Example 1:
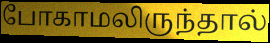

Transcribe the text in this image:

போகாமலிருந்தால்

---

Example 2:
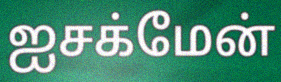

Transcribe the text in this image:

ஐசக்மேன்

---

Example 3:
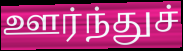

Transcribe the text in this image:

ஊர்ந்துச்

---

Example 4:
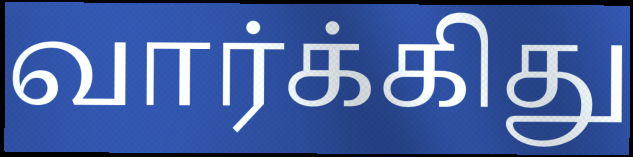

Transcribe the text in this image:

வார்க்கிது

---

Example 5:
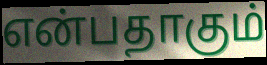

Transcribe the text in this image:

என்பதாகும்